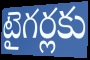
టైగర్లకు